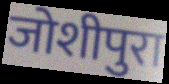
जोशीपुरा